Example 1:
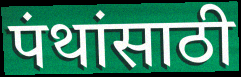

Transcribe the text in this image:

पंथांसाठी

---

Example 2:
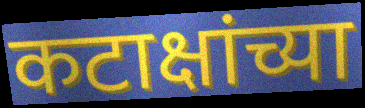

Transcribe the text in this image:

कटाक्षांच्या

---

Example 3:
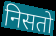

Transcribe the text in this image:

निसतो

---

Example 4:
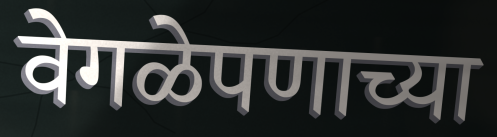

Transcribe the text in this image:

वेगळेपणाच्या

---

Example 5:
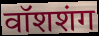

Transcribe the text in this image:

वॉशशंग